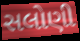
સલોણી